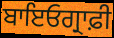
ਬਾਇਓਗ੍ਰਾਫ਼ੀ